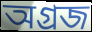
অগ্রজ